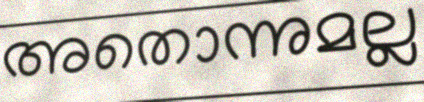
അതൊന്നുമല്ല